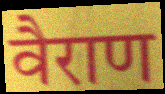
वैराण